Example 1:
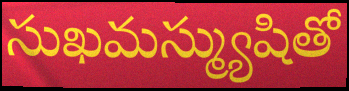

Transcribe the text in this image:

సుఖమస్మ్యుషితో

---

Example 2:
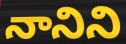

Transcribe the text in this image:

నానిని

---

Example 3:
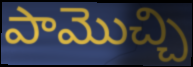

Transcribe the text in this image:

పామొచ్చి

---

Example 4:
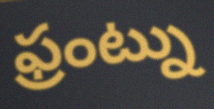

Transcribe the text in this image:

ఫ్రంట్ను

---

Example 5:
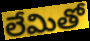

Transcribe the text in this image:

లేమితో